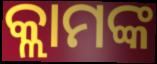
କ୍ଲାମଙ୍କ